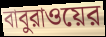
বাবুরাওয়ের